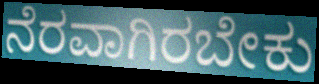
ನೆರವಾಗಿರಬೇಕು